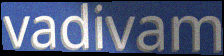
vadivam